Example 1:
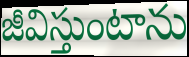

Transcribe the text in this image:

జీవిస్తుంటాను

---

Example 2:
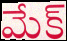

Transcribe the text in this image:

మేక్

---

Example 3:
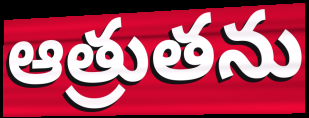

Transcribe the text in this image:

ఆత్రుతను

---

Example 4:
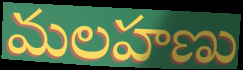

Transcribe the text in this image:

మలహణు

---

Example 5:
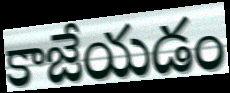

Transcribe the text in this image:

కాజేయడం